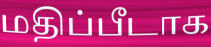
மதிப்பீடாக